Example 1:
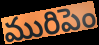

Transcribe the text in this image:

మురిపెం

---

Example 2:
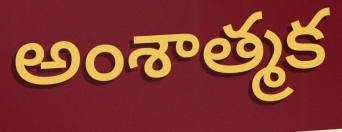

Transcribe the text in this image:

అంశాత్మక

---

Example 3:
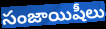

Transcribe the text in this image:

సంజాయిషీలు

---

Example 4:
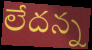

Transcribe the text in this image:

లేదన్న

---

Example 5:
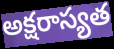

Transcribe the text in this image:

అక్షరాస్యత